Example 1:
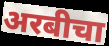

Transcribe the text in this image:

अरबीचा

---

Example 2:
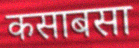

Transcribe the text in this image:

कसाबसा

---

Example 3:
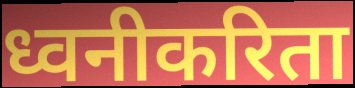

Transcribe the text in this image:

ध्वनीकरिता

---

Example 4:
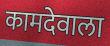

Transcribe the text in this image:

कामदेवाला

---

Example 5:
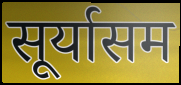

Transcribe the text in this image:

सूर्यासम